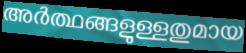
അർത്ഥങ്ങളുള്ളതുമായ